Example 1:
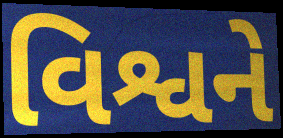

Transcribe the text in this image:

વિશ્વને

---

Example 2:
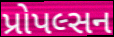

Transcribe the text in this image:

પ્રોપલ્સન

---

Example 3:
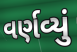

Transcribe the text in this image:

વર્ણવ્યું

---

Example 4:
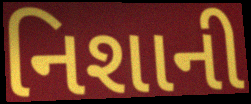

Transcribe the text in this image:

નિશાની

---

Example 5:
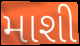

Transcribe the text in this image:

માશી